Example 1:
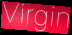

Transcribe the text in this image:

Virgin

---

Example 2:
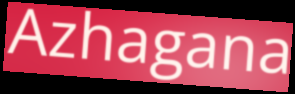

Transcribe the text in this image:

Azhagana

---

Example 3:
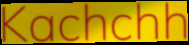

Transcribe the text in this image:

Kachchh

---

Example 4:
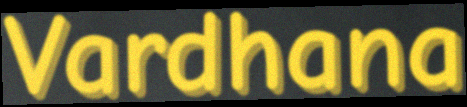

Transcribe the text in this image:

Vardhana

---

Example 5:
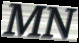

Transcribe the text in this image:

MN